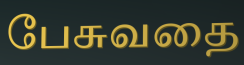
பேசுவதை